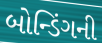
બોન્ડિંગની